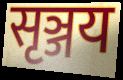
सृञ्जय